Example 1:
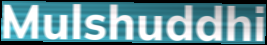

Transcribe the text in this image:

Mulshuddhi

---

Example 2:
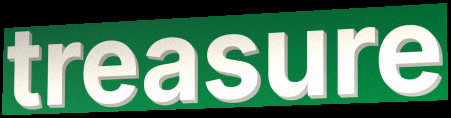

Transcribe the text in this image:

treasure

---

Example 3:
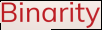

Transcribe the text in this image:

Binarity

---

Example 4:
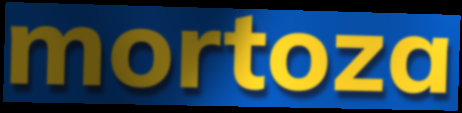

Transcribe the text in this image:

mortoza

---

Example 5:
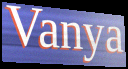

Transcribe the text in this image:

Vanya